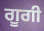
ਗੂਗੀ